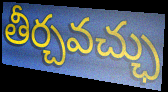
తీర్చవచ్ఛు